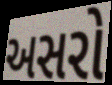
અસરો